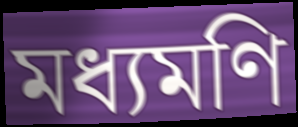
মধ্যমণি